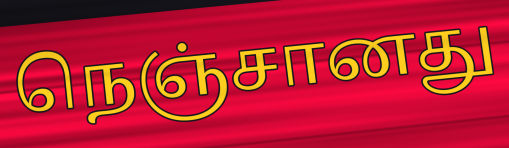
நெஞ்சானது